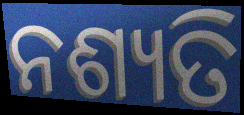
ନଶ୍ୟତି